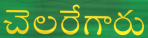
చెలరేగారు